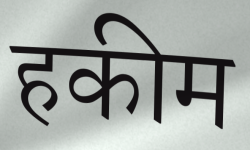
हकीम